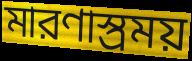
মারণাস্ত্রময়